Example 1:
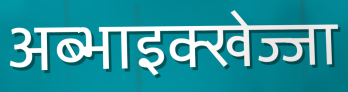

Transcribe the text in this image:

अब्भाइक्खेज्जा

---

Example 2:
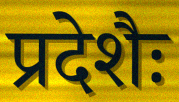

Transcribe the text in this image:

प्रदेशैः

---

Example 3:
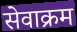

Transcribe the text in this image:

सेवाक्रम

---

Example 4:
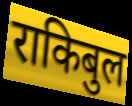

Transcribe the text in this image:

राकिबुल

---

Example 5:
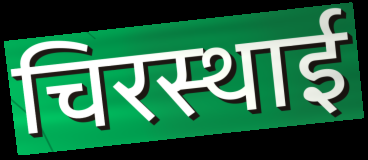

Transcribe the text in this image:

चिरस्थाई